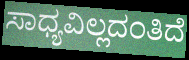
ಸಾಧ್ಯವಿಲ್ಲದಂತಿದೆ